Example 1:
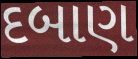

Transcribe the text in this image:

દબાણ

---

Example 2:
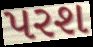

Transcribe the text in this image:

પરશ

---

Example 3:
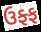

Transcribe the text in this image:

ઉફ્ફ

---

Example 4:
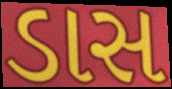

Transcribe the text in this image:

ડાસ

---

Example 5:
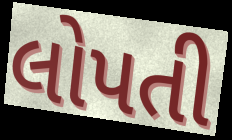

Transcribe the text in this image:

લોપતી